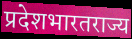
प्रदेशभारतराज्य